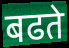
बढते